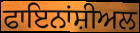
ਫਾਇਨਾਂਸ਼ੀਅਲ